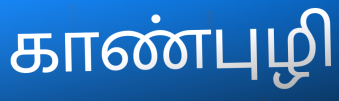
காண்புழி